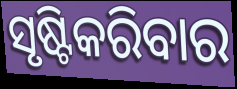
ସୃଷ୍ଟିକରିବାର